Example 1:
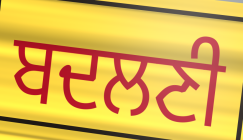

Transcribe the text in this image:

ਬਦਲਣੀ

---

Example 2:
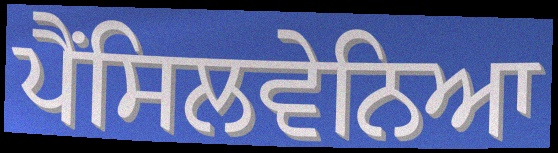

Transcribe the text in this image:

ਪੈਂਸਿਲਵੇਨਿਆ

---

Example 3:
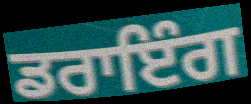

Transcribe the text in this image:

ਡਰਾਇੰਗ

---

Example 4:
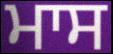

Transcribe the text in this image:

ਮਾਸ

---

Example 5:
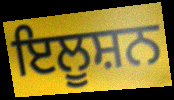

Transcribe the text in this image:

ਇਲੂਸ਼ਨ